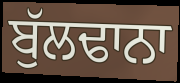
ਬੁੱਲਢਾਨਾ